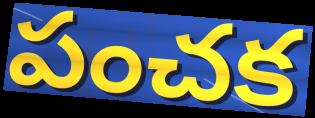
పంచక